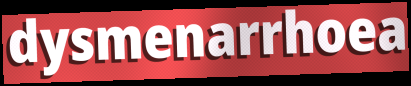
dysmenarrhoea